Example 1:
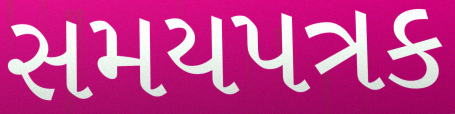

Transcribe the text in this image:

સમયપત્રક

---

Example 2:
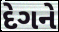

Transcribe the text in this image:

દેગને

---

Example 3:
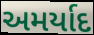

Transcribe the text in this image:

અમર્યાદ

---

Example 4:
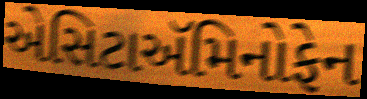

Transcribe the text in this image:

એસિટાઍમિનોફેન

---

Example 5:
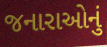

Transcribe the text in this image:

જનારાઓનું